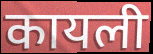
कायली